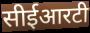
सीईआरटी